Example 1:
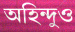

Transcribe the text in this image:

অহিন্দুও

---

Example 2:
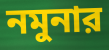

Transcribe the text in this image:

নমুনার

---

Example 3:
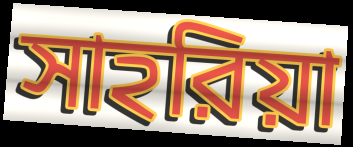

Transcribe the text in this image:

সাহরিয়া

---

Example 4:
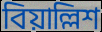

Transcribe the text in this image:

বিয়াল্লিশ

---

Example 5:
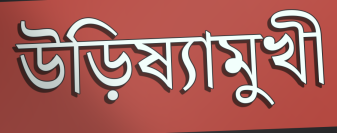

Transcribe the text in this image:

উড়িষ্যামুখী